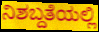
ನಿಶಬ್ದತೆಯಲ್ಲಿ